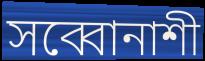
সব্বোনাশী